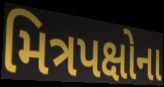
મિત્રપક્ષોના